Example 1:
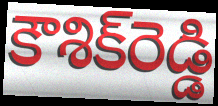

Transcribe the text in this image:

కౌశిక్‌రెడ్డి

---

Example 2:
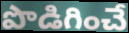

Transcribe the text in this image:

పొడిగించే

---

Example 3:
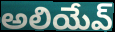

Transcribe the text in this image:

అలియేవ్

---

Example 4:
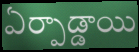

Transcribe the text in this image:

ఏర్పాడ్డాయి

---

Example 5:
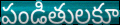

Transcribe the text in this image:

పండితులకూ